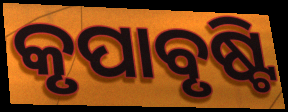
କୃପାବୃଷ୍ଟି